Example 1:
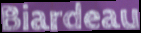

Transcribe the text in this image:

Biardeau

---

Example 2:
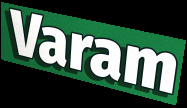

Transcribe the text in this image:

Varam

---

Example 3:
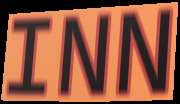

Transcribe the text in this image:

INN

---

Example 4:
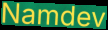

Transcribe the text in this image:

Namdev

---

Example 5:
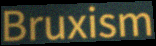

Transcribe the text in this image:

Bruxism